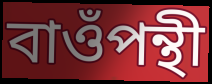
বাওঁপন্থী